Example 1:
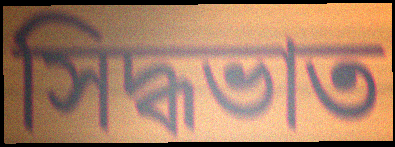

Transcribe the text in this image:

সিদ্ধভাত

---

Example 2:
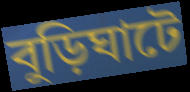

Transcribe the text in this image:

বুড়িঘাটে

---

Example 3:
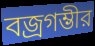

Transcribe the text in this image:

বজ্রগম্ভীর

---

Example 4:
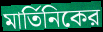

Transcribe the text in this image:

মার্তিনিকের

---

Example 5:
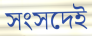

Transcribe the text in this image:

সংসদেই